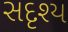
સદૃશ્ય